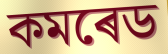
কমৰেড